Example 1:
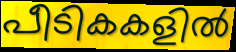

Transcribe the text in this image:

പീടികകളിൽ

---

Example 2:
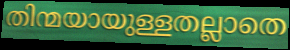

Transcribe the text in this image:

തിന്മയായുള്ളതല്ലാതെ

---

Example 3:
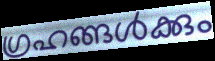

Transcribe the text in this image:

ഗ്രഹങ്ങൾക്കും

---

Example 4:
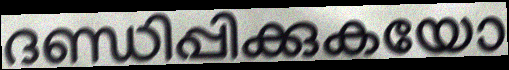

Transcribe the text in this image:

ദണ്ഡിപ്പിക്കുകയോ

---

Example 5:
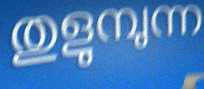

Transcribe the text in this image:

തുളുമ്പുന്ന